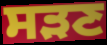
ਸੜਣ